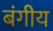
बंगीय